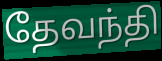
தேவந்தி